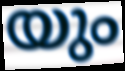
യും